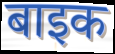
बाइक